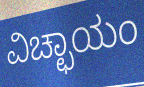
ವಿಚ್ಛಾಯಂ